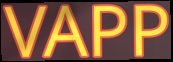
VAPP